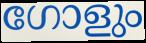
ഗോളും